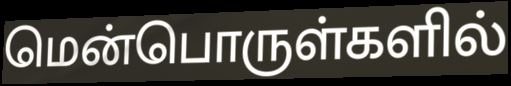
மென்பொருள்களில்